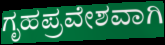
ಗೃಹಪ್ರವೇಶವಾಗಿ